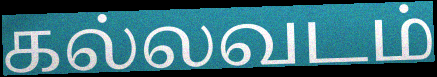
கல்லவடம்